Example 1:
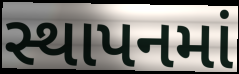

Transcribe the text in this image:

સ્થાપનમાં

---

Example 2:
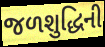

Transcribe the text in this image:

જળશુદ્ધિની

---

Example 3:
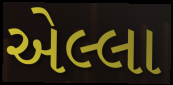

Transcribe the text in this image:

એલ્લા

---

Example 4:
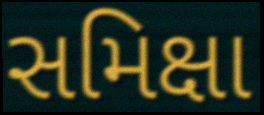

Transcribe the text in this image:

સમિક્ષા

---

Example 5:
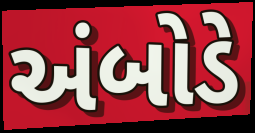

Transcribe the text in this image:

અંબોડે